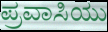
ಪ್ರವಾಸಿಯು